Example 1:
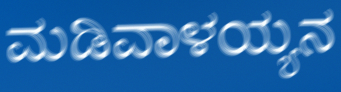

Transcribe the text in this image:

ಮಡಿವಾಳಯ್ಯನ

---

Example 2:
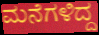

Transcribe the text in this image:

ಮನೆಗಳಿದ್ದ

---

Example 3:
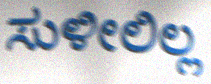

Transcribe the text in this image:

ಸುಳೀಲಿಲ್ಲ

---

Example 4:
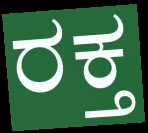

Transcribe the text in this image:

ರಕ್ತ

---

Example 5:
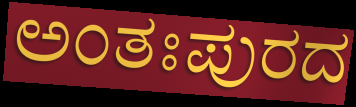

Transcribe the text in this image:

ಅಂತಃಪುರದ